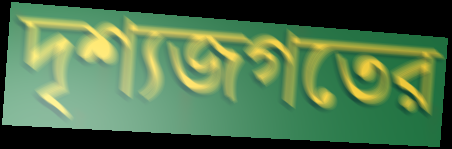
দৃশ্যজগতের